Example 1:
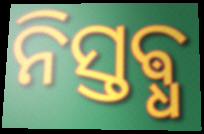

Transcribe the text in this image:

ନିସ୍ତଵ୍ଧ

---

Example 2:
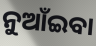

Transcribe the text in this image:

ନୁଆଁଇବା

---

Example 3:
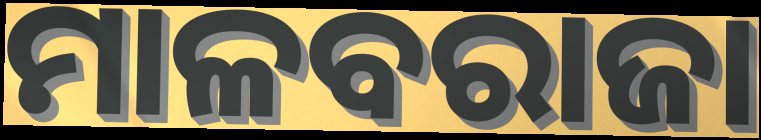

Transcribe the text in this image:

ମାଳବରାଜା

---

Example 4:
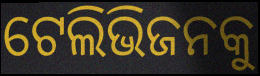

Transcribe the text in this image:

ଟେଲିଭିଜନକୁ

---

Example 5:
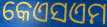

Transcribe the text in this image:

କେଏସଏମ